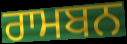
ਰਾਮਬਨ